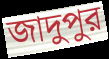
জাদুপুর